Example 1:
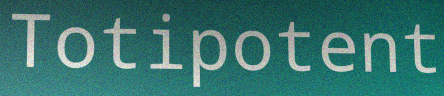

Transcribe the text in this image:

Totipotent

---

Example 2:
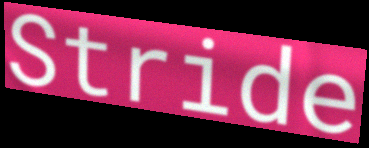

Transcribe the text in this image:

Stride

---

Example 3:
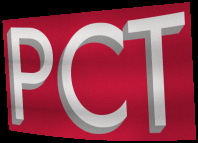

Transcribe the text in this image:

PCT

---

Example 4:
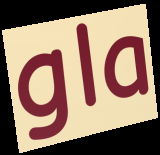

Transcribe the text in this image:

gla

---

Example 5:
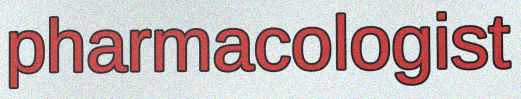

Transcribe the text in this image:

pharmacologist